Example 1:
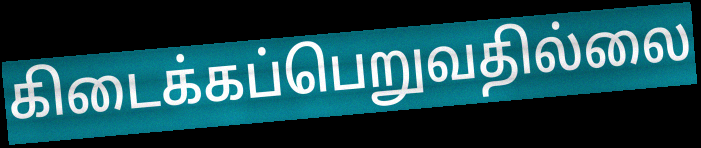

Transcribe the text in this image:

கிடைக்கப்பெறுவதில்லை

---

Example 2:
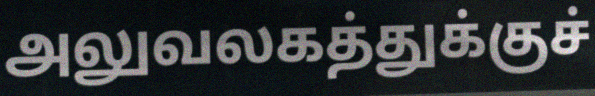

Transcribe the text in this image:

அலுவலகத்துக்குச்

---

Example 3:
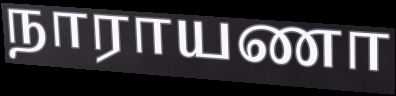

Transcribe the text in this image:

நாராயணா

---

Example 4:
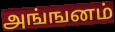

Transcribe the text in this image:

அங்ஙனம்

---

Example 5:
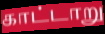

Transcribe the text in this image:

காட்டாறு